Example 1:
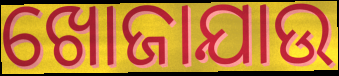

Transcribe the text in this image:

ଖୋଜାଯାଉ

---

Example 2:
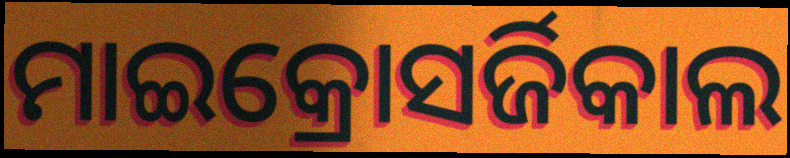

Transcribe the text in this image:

ମାଇକ୍ରୋସର୍ଜିକାଲ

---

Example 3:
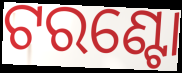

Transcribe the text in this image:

ଟରଣ୍ଟୋ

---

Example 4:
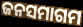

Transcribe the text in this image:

ଜନସମାଗମ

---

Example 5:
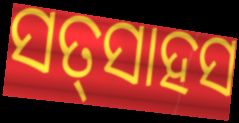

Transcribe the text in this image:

ସତ୍‍ସାହସ